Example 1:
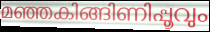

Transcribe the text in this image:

മഞ്ഞകിങ്ങിണിപ്പൂവും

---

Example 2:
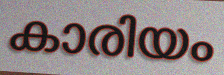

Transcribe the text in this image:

കാരിയം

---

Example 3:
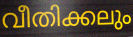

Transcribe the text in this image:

വീതിക്കലും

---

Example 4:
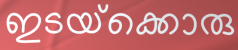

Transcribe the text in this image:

ഇടയ്‌ക്കൊരു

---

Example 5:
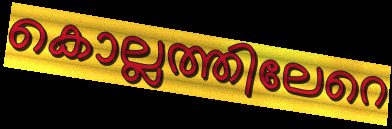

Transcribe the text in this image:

കൊല്ലത്തിലേറെ